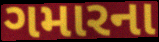
ગમારના